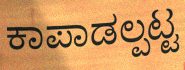
ಕಾಪಾಡಲ್ಪಟ್ಟ